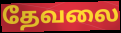
தேவலை